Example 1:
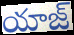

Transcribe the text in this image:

యాజ్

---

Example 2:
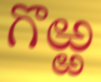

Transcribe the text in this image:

గొఱ్ఱ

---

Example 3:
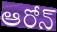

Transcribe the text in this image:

ఆరోన్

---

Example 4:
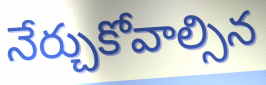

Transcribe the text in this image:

నేర్చుకోవాల్సిన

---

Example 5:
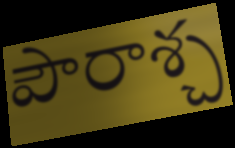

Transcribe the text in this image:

పౌరాశ్చ